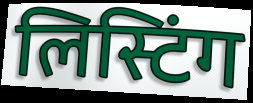
लिस्‍टिंग